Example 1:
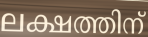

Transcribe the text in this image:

ലക്ഷത്തിന്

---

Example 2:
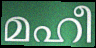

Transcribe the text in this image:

മഹീ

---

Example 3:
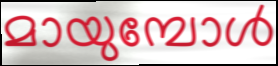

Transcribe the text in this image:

മായുമ്പോൾ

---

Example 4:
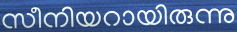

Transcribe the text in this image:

സീനിയറായിരുന്നു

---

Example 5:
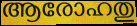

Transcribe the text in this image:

ആരോഹതു